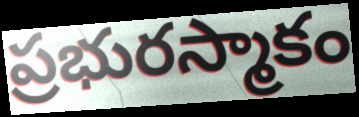
ప్రభురస్మాకం